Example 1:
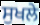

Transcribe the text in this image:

ਸੁਖਲੇ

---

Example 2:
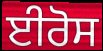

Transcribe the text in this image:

ਈਰੋਸ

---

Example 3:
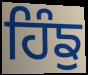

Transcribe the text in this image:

ਹਿੰਙੁ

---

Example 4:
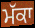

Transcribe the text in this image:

ਮੱਕਾ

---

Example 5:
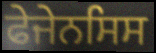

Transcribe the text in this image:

ਫੇਜੇਨਸਿਸ